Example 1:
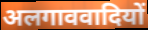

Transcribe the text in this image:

अलगाववादियों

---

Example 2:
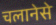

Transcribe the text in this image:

चलानेसे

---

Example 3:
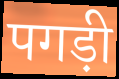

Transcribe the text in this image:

पगड़ी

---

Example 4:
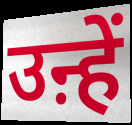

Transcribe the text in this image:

उऩ्हें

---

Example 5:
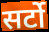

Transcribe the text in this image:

सर्टो